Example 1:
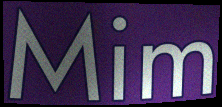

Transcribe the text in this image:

Mim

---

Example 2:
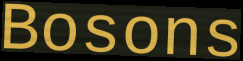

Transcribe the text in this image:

Bosons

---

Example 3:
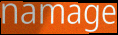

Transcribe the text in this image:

namage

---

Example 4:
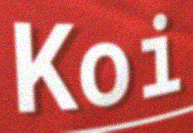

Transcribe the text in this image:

Koi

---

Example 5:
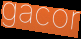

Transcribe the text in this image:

gacor